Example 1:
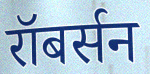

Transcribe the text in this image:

रॉबर्सन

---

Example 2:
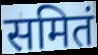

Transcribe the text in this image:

समितं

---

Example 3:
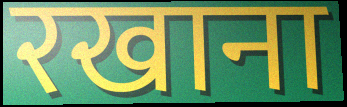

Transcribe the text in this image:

रखाना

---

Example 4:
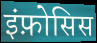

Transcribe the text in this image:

इंफ़ोसिस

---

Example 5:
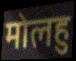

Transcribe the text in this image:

मोलहु